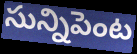
సున్నిపెంట